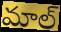
మాల్